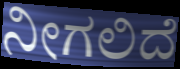
ನೀಗಲಿದೆ